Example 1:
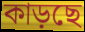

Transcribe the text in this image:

কাড়ছে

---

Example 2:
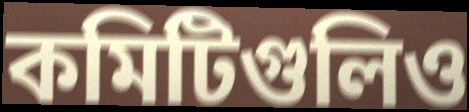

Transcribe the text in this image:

কমিটিগুলিও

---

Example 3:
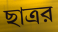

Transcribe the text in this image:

ছাত্রর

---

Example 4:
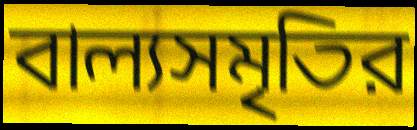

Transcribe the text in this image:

বাল্যসমৃতির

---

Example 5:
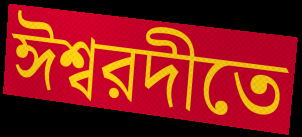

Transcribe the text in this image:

ঈশ্বরদীতে